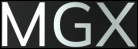
MGX